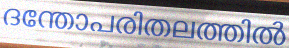
ദന്തോപരിതലത്തിൽ